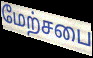
மேற்சபை